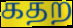
கதற